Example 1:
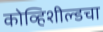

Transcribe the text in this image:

कोव्हिशील्डचा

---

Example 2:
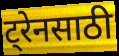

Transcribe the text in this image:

ट्रेनसाठी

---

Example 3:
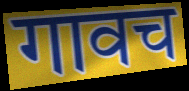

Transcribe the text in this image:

गावच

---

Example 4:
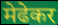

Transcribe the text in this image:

मेढेकर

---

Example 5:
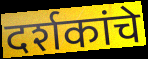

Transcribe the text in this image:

दर्शकांचे